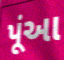
પૂંઆ